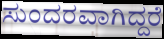
ಸುಂದರವಾಗಿದ್ದರೆ